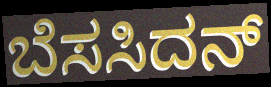
ಬೆಸಸಿದನ್